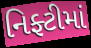
નિફ્ટીમાં